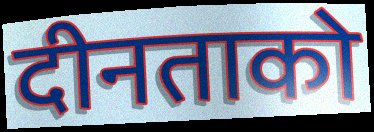
दीनताको